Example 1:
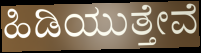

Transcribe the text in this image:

ಹಿಡಿಯುತ್ತೇವೆ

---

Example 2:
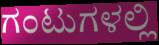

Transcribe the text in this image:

ಗಂಟುಗಳಲ್ಲಿ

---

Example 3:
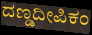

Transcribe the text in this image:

ದಣ್ಡದೀಪಿಕಂ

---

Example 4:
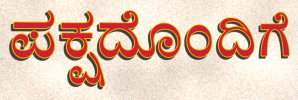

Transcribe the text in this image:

ಪಕ್ಷದೊಂದಿಗೆ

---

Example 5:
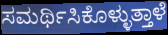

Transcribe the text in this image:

ಸಮರ್ಥಿಸಿಕೊಳ್ಳುತ್ತಾಳೆ